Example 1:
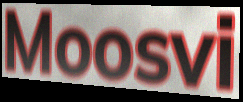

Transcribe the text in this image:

Moosvi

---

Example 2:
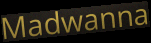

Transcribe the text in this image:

Madwanna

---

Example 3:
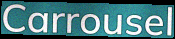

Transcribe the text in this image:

Carrousel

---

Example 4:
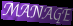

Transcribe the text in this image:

MANAGE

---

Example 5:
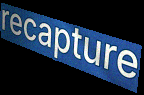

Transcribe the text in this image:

recapture